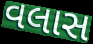
વલાસ